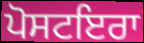
ਪੋਸਟਇਰਾ